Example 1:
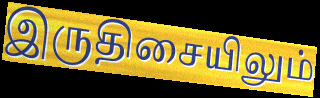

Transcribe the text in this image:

இருதிசையிலும்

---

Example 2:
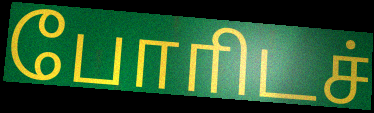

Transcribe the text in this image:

போரிடச்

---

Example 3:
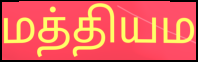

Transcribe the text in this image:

மத்தியம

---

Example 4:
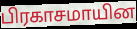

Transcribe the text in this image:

பிரகாசமாயின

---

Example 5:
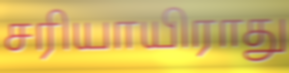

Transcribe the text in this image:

சரியாயிராது